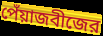
পেঁয়াজবীজের